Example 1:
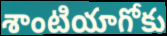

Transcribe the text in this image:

శాంటియాగోకు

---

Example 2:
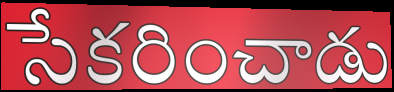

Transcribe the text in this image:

సేకరించాడు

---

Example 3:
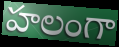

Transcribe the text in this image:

హలంగా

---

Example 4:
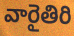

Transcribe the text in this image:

వారైతిరి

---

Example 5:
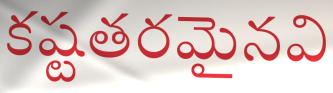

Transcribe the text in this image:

కష్టతరమైనవి